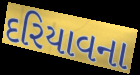
દરિયાવના